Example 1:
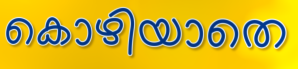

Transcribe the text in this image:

കൊഴിയാതെ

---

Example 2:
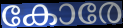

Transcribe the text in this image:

കോരേ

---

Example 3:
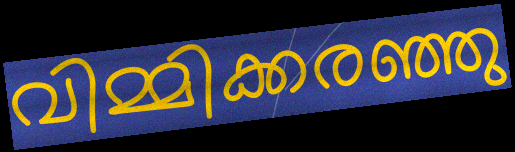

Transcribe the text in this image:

വിമ്മിക്കരഞ്ഞു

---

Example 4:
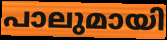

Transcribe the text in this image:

പാലുമായി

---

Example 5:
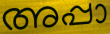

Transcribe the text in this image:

അപ്പാ